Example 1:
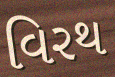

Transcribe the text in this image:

વિરથ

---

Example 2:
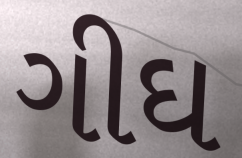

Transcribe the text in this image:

ગીઘ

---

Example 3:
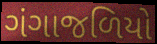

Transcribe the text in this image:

ગંગાજળિયો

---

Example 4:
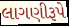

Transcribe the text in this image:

લાગણીરૂપે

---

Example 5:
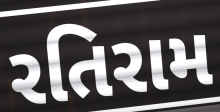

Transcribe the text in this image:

રતિરામ